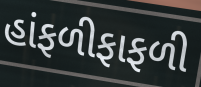
હાંફળીફાફળી